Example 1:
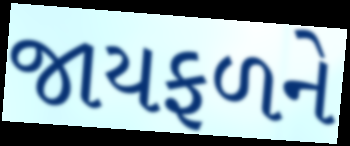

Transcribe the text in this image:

જાયફળને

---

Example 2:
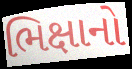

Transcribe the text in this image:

ભિક્ષાનો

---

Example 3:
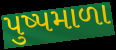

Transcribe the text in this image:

પુષ્પમાળા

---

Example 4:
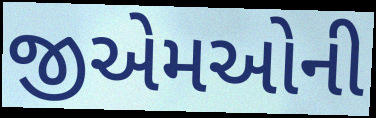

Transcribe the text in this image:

જીએમઓની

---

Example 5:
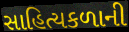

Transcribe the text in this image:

સાહિત્યકળાની